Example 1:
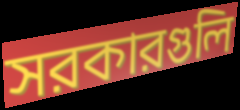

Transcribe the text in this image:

সরকারগুলি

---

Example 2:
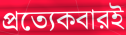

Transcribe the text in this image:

প্রত্যেকবারই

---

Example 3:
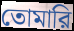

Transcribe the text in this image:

তোমারি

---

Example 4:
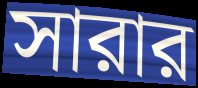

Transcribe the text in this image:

সারার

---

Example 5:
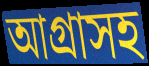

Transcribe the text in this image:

আগ্রাসহ